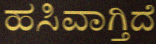
ಹಸಿವಾಗ್ತಿದೆ